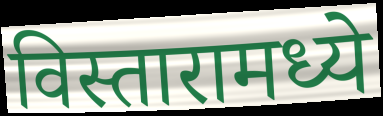
विस्तारामध्ये